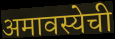
अमावस्येची